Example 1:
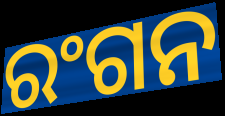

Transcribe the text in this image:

ରଂଗନ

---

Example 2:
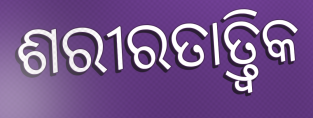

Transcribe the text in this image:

ଶରୀରତାତ୍ତ୍ଵିକ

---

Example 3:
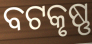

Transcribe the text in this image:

ବଟକୃଷ୍ଣ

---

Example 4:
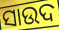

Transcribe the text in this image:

ସାଉଦ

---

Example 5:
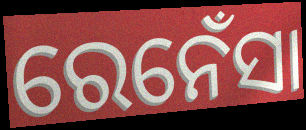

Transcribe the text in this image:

ରେନେଁସା